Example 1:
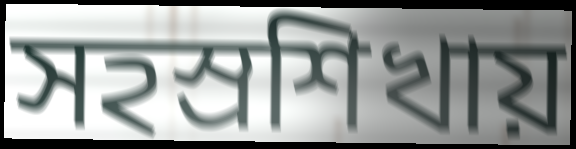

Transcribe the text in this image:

সহস্রশিখায়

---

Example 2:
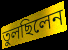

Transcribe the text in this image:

তুলছিলেন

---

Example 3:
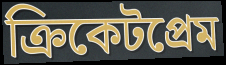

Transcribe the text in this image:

ক্রিকেটপ্রেম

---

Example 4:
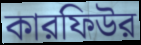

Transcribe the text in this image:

কারফিউর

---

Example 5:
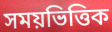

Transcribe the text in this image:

সময়ভিত্তিক